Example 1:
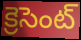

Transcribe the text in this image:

క్రెసెంట్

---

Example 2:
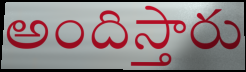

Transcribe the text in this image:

అందిస్తారు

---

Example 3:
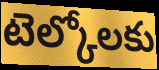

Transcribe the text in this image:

టెల్కోలకు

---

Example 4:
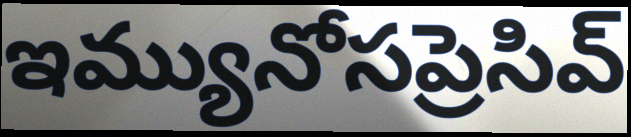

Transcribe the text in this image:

ఇమ్యునోసప్రెసివ్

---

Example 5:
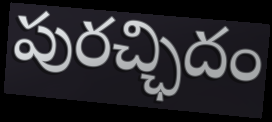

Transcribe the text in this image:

పురచ్ఛిదం